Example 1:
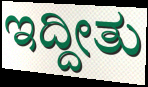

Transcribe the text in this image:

ಇದ್ದೀತು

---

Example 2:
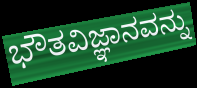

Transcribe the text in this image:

ಭೌತವಿಜ್ಞಾನವನ್ನು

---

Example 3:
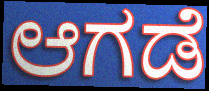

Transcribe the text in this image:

ಆಗಡೆ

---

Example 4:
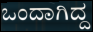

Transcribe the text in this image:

ಒಂದಾಗಿದ್ದ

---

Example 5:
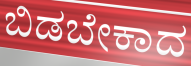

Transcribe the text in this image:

ಬಿಡಬೇಕಾದ